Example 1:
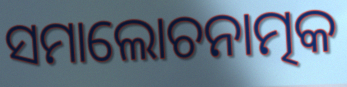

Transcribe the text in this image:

ସମାଲୋଚନାତ୍ମକ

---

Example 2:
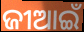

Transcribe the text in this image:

ଜୀଆଇଁ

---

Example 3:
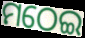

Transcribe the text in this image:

ମଠେଇ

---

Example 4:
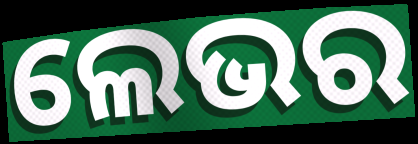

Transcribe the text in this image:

ଲେଭର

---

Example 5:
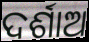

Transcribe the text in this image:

ଦର୍ଶାଅ